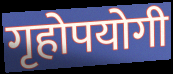
गृहोपयोगी